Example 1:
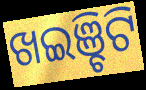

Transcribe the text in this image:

ଖଇଞ୍ଚିଟି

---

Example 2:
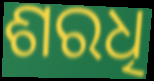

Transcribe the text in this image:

ଶରଧି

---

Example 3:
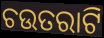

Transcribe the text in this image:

ଚଉତରାଟି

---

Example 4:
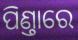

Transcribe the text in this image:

ପିଣ୍ତାରେ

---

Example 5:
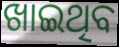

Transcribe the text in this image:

ଖାଇଥିବ